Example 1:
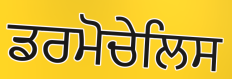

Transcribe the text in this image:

ਡਰਮੋਚੇਲਿਸ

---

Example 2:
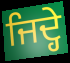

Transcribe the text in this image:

ਜਿਦ੍ਹੇ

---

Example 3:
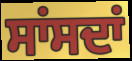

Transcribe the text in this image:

ਸਾਂਸਦਾਂ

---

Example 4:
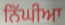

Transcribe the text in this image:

ਨਿੱਘੀਆ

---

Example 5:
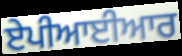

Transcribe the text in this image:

ਏਪੀਆਈਆਰ